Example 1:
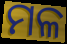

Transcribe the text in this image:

ମଳ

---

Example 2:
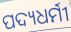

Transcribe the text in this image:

ପଦ୍ୟଧର୍ମୀ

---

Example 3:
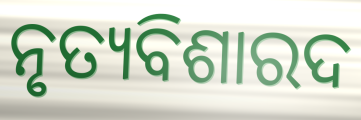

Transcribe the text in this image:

ନୃତ୍ୟବିଶାରଦ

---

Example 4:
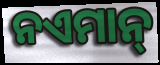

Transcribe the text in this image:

ନଏମାନ୍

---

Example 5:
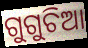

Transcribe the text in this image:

ଗୁଗୁଚିଆ